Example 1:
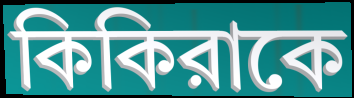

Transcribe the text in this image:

কিকিরাকে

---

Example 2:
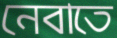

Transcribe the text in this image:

নেবাতে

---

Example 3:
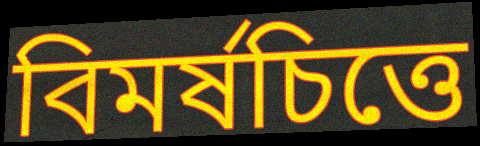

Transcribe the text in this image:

বিমর্ষচিত্তে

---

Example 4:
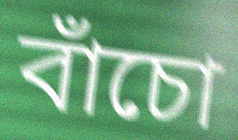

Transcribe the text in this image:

বাঁচো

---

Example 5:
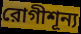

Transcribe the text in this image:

রোগীশূন্য